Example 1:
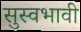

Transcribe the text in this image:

सुस्वभावी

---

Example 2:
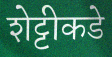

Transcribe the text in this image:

शेट्टीकडे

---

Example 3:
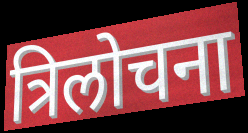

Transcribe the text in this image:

त्रिलोचना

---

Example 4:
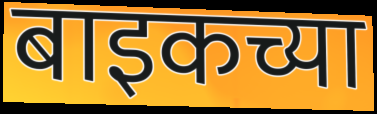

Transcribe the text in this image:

बाइकच्या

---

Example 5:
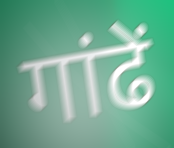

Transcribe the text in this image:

गांढें